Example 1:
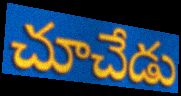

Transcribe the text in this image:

చూచేడు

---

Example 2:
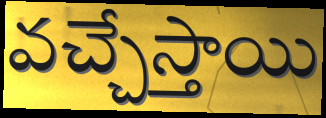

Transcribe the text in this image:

వచ్చేస్తాయి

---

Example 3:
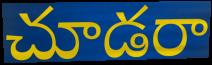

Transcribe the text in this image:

చూడరా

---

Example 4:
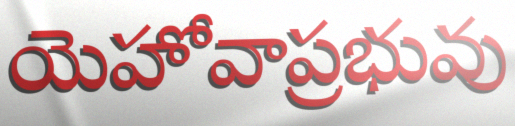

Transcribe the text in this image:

యెహోవాప్రభువు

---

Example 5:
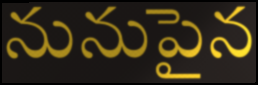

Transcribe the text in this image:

నునుపైన